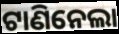
ଟାଣିନେଲା